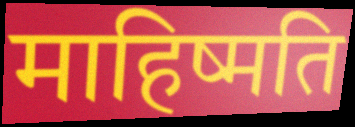
माहिष्मति